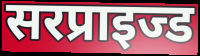
सरप्राइज्ड